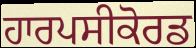
ਹਾਰਪਸੀਕੋਰਡ